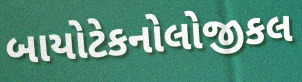
બાયોટેકનોલોજીકલ